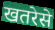
खतरेसे